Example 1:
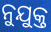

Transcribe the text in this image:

ନୁଯୁକ୍ତ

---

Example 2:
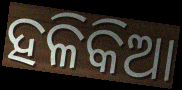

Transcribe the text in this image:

ହଳିକିଆ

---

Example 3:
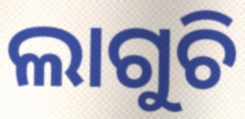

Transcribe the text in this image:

ଲାଗୁଚି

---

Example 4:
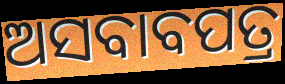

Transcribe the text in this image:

ଅସବାବପତ୍ର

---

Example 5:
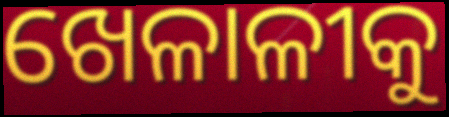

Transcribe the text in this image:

ଖେଳାଳୀକୁ